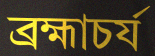
ব্ৰহ্মাচৰ্য